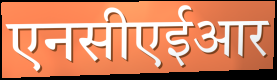
एनसीएईआर